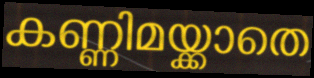
കണ്ണിമയ്ക്കാതെ